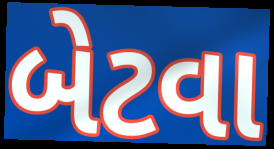
બેટવા